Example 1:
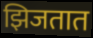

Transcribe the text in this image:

झिजतात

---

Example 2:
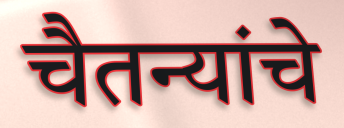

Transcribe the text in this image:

चैतन्यांचे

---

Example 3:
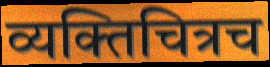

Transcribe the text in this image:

व्यक्तिचित्रच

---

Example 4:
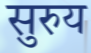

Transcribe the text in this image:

सुरुय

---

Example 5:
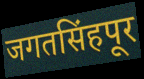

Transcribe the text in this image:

जगतसिंहपूर